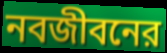
নবজীবনের